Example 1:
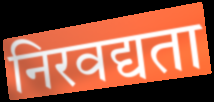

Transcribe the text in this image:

निरवद्यता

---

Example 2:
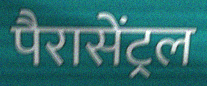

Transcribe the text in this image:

पैरासेंट्रल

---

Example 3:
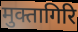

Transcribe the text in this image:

मुक्तागिरि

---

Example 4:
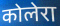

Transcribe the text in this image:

कोलेरा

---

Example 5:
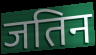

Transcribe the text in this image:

जतिन